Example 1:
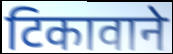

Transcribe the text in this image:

टिकावाने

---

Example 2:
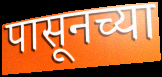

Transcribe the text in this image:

पासूनच्या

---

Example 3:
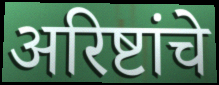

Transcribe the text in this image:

अरिष्टांचे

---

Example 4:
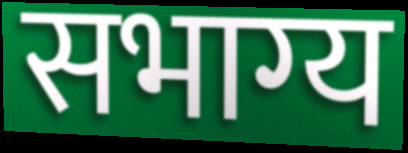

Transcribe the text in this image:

सभाग्य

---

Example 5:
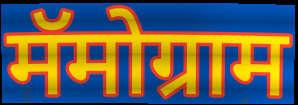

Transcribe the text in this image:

मॅमोग्राम